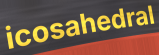
icosahedral